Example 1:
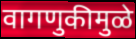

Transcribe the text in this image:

वागणुकीमुळे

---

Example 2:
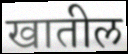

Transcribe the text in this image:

खातील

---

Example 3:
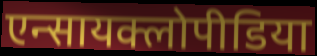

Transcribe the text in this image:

एन्सायक्लोपीडिया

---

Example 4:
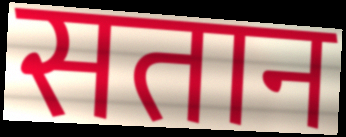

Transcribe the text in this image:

सतान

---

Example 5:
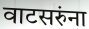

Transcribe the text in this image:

वाटसरुंना